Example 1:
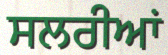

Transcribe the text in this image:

ਸਲਰੀਆਂ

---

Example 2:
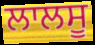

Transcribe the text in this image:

ਲਾਲਸੂ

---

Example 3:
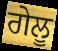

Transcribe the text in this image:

ਗੇਲੂ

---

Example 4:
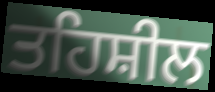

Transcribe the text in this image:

ਤਹਿਸ਼ੀਲ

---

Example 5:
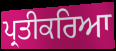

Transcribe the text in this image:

ਪ੍ਰਤੀਕਰਿਆ